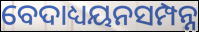
ବେଦାଧ୍ୟୟନସମ୍ପନ୍ନ